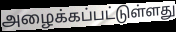
அழைக்கப்பட்டுள்ளது